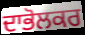
ਦਾਭੋਲਕਰ